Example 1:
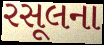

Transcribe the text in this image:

રસૂલના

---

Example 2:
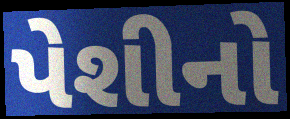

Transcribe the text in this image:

પેશીનો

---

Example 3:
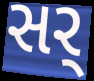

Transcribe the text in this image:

સર્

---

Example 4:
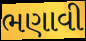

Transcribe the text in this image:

ભણાવી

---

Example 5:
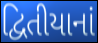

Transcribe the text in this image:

દ્વિતીયાનાં